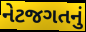
નેટજગતનું